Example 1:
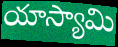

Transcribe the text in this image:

యాస్యామి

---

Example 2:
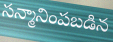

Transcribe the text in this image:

సన్మానింపబడిన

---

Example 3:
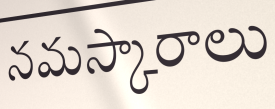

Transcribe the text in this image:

నమస్కారాలు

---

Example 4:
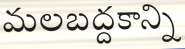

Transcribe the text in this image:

మలబద్దకాన్ని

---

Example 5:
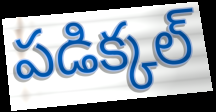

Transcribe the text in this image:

పడిక్కల్